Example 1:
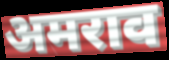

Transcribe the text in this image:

अमराव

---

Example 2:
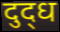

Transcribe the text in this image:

दुद्ध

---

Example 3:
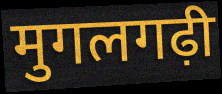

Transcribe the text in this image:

मुगलगढ़ी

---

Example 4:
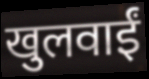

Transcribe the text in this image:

खुलवाईं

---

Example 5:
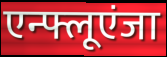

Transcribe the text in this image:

एन्फ्लूएंजा